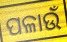
ପଳାଉଁ